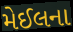
મેઈલના